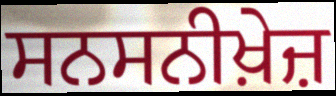
ਸਨਸਨੀਖ਼ੇਜ਼